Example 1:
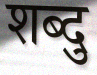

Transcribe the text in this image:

शब्दु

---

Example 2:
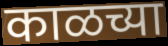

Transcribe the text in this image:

काळच्या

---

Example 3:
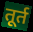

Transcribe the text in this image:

तूर्त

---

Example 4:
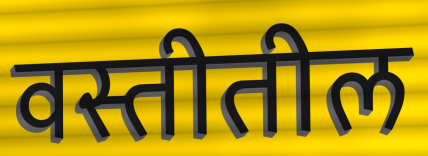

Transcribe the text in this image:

वस्तीतील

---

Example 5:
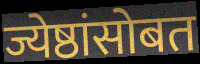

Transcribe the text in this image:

ज्येष्ठांसोबत